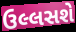
ઉલ્લસશે